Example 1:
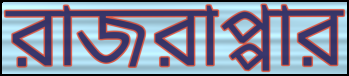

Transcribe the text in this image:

রাজরাপ্পার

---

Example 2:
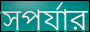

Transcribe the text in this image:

সপর্যার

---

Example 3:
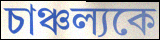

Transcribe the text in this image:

চাঞ্চল্যকে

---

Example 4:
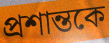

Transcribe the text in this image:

প্রশান্তকে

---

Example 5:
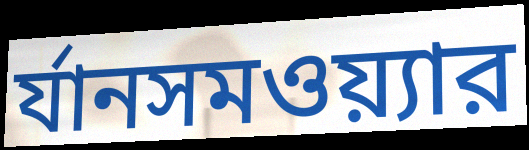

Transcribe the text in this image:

র্যানসমওয়্যার